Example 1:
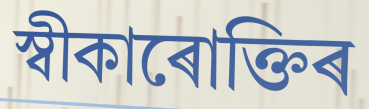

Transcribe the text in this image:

স্বীকাৰোক্তিৰ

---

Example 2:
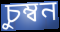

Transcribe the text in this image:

চুম্বন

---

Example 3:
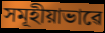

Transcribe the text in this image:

সমূহীয়াভাৱে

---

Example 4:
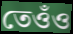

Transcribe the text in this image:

তেওঁও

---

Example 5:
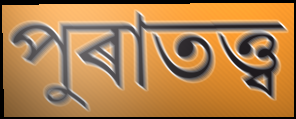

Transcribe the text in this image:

পুৰাতত্ত্ব